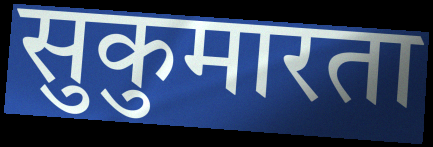
सुकुमारता